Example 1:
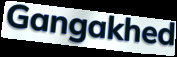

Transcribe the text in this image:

Gangakhed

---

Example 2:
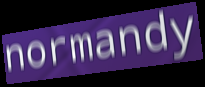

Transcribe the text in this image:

normandy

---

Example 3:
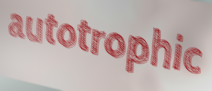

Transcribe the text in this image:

autotrophic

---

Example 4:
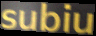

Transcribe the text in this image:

subiu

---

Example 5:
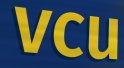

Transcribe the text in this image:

vcu